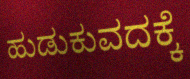
ಹುಡುಕುವದಕ್ಕೆ